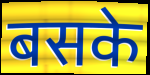
बसके